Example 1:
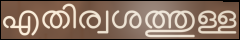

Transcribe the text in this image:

എതിര്വശത്തുള്ള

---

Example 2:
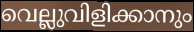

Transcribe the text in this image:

വെല്ലുവിളിക്കാനും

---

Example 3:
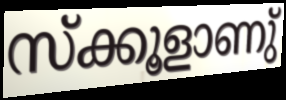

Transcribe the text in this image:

സ്ക്കൂളാണു്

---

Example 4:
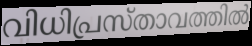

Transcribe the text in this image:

വിധിപ്രസ്താവത്തിൽ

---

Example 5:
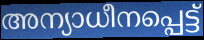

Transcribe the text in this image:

അന്യാധീനപ്പെട്ട്